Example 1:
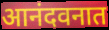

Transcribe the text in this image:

आनंदवनात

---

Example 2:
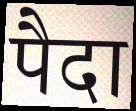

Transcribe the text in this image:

पैदा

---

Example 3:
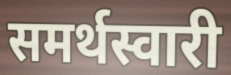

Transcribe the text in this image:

समर्थस्वारी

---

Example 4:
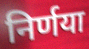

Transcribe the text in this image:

निर्णया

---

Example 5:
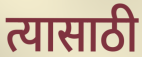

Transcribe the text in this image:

त्यासाठी